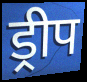
ड्रीप